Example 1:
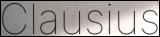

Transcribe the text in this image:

Clausius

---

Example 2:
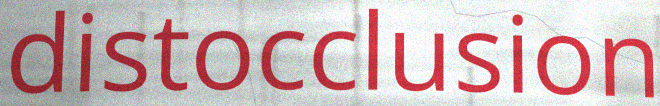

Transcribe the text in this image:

distocclusion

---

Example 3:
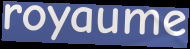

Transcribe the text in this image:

royaume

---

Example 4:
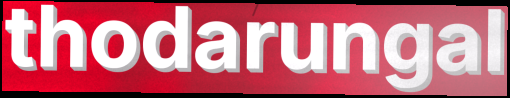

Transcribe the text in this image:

thodarungal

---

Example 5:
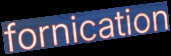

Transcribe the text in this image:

fornication